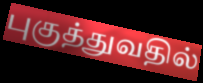
புகுத்துவதில்